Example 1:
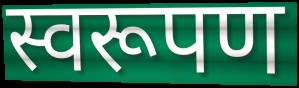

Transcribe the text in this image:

स्वरूपण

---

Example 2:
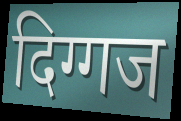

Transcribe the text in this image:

दिग्गज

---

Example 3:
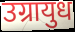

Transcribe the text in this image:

उग्रायुध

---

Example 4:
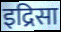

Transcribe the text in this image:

इद्रिसा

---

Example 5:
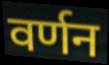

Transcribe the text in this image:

वर्णन